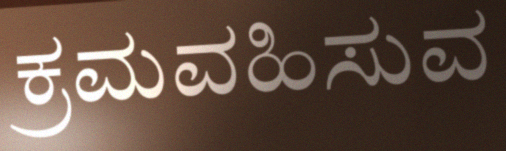
ಕ್ರಮವಹಿಸುವ